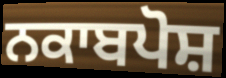
ਨਕਾਬਪੋਸ਼